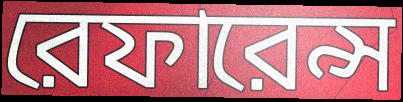
রেফারেন্স